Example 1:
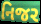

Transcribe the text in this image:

નિજર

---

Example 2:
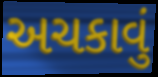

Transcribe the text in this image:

અચકાવું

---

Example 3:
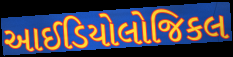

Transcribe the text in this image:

આઈડિયોલોજિકલ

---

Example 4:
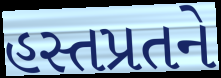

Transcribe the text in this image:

હસ્તપ્રતને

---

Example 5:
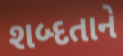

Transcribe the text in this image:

શબ્દતાને